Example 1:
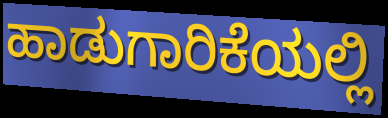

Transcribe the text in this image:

ಹಾಡುಗಾರಿಕೆಯಲ್ಲಿ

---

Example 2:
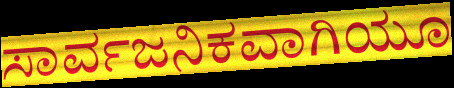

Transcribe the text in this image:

ಸಾರ್ವಜನಿಕವಾಗಿಯೂ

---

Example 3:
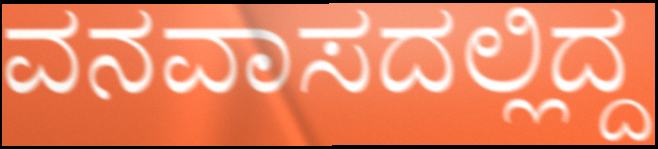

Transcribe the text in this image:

ವನವಾಸದಲ್ಲಿದ್ದ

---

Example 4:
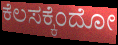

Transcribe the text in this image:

ಕೆಲಸಕ್ಕೆಂದೋ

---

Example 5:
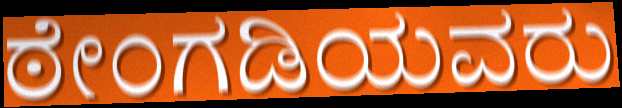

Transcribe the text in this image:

ಠೇಂಗಡಿಯವರು